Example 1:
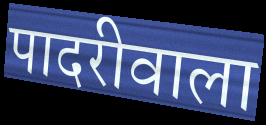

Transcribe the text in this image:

पादरीवाला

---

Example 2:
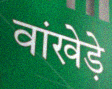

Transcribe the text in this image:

वांखेड़े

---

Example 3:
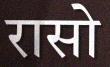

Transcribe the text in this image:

रासो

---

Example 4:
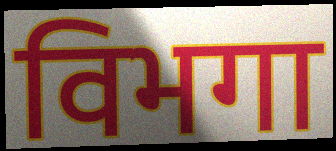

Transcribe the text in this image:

विभगा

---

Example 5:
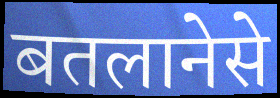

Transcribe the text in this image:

बतलानेसे